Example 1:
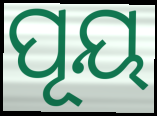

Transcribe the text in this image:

ପୂୟ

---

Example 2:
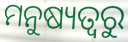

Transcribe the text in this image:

ମନୁଷ୍ୟତ୍ୱରୁ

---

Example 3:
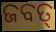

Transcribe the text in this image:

ଜବତ୍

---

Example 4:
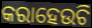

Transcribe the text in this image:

କରାହେଉଚି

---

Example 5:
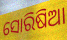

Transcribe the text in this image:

ସୋରିଷିଆ